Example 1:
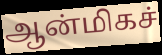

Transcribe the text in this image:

ஆன்மிகச்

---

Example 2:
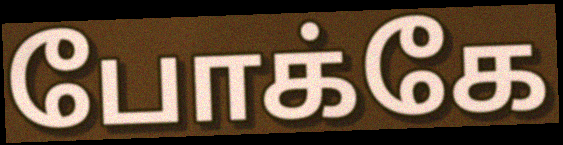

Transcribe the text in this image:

போக்கே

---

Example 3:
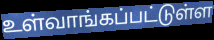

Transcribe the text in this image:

உள்வாங்கப்பட்டுள்ள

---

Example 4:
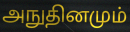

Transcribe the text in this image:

அநுதினமும்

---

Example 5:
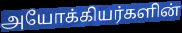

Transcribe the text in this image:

அயோக்கியர்களின்